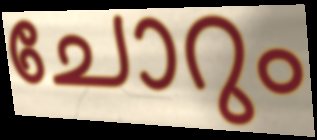
ചോറും